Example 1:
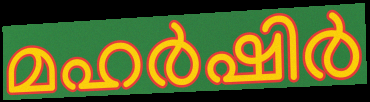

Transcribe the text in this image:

മഹർഷിർ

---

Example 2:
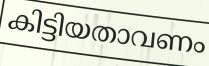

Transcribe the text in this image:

കിട്ടിയതാവണം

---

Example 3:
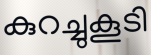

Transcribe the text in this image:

കുറച്ചുകൂടി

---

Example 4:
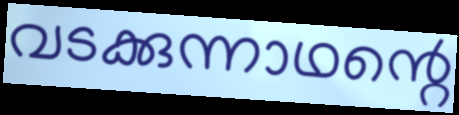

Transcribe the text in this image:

വടക്കുന്നാഥന്റെ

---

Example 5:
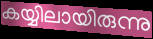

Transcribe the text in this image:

കയ്യിലായിരുന്നു